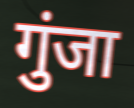
गुंजा